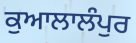
ਕੁਆਲਾਲੰਪੁਰ